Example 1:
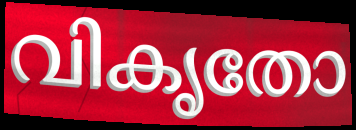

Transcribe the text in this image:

വികൃതോ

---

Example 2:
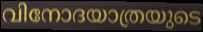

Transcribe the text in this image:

വിനോദയാത്രയുടെ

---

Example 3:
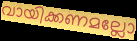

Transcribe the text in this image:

വായിക്കണമല്ലോ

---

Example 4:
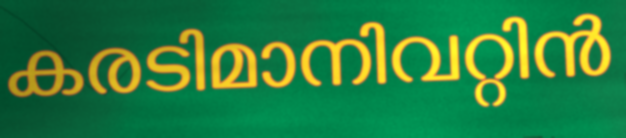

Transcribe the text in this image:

കരടിമാനിവറ്റിൻ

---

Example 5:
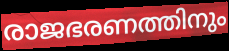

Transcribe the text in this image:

രാജഭരണത്തിനും